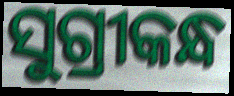
ସୁଗ୍ରୀକନ୍ଧ